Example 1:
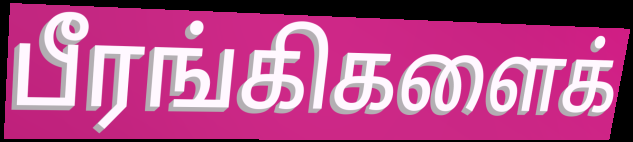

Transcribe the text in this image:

பீரங்கிகளைக்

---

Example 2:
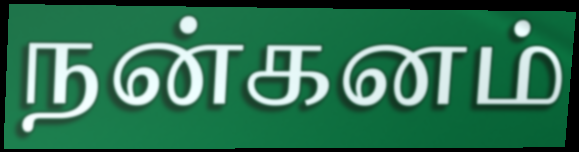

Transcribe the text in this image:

நன்கனம்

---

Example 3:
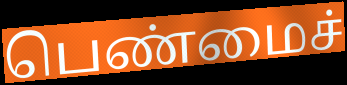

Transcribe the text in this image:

பெண்மைச்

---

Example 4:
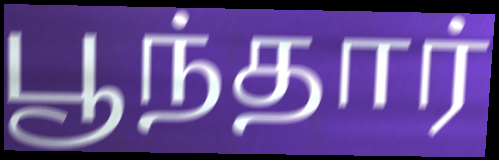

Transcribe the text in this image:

பூந்தார்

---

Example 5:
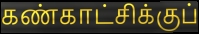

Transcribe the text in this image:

கண்காட்சிக்குப்